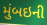
મુંબઇની